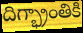
దిగ్భ్రాంతికి